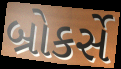
બ્રોકર્સે